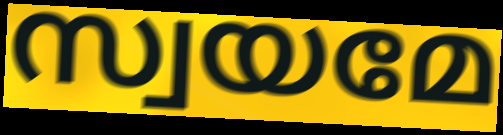
സ്വയമേ